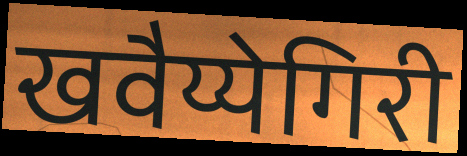
खवैय्येगिरी